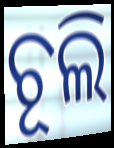
ଚୂଲି